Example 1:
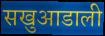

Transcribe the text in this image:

सखुआडाली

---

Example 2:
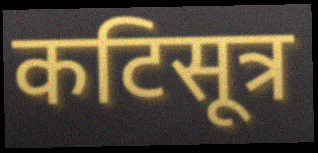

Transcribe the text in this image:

कटिसूत्र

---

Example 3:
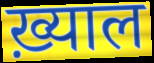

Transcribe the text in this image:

ख़्याल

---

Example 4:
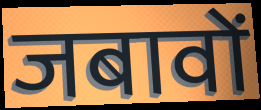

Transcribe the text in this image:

जबावों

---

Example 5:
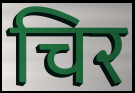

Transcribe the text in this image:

चिर